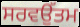
ਸਰਵਉੱਤਮ